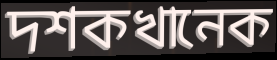
দশকখানেক